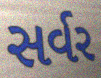
સર્વર